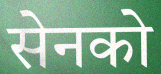
सेनको